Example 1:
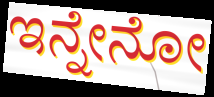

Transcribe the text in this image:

ಇನ್ನೇನೋ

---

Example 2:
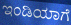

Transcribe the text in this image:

ಇಂಡಿಯಾಗೆ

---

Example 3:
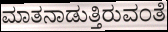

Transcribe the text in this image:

ಮಾತನಾಡುತ್ತಿರುವಂತೆ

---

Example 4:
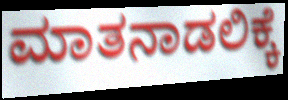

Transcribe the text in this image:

ಮಾತನಾಡಲಿಕ್ಕೆ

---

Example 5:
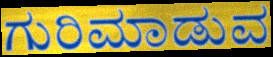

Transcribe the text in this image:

ಗುರಿಮಾಡುವ